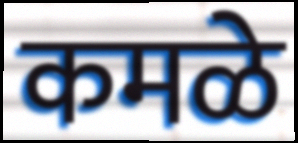
कमळे